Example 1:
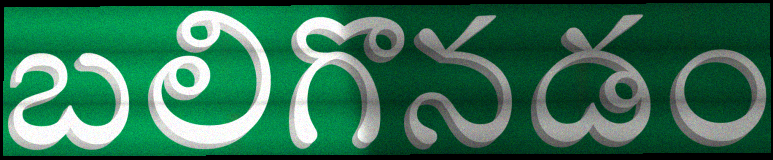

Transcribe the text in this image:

బలిగొనడం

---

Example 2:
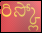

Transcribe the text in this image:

రిస్క్లో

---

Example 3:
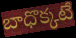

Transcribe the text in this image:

బాధొక్కటే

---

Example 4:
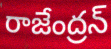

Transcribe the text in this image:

రాజేంద్రన్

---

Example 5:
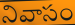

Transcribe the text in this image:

నివాసం